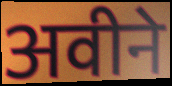
अवीने